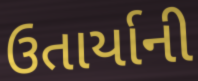
ઉતાર્યાની